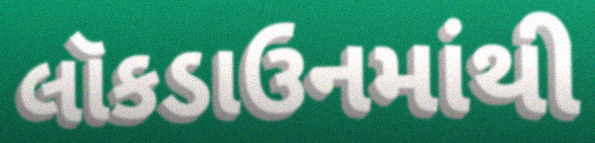
લૉકડાઉનમાંથી